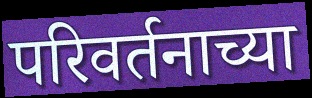
परिवर्तनाच्या